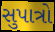
સુપાત્રો